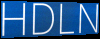
HDLN